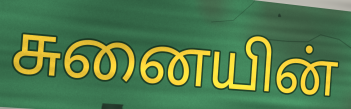
சுனையின்